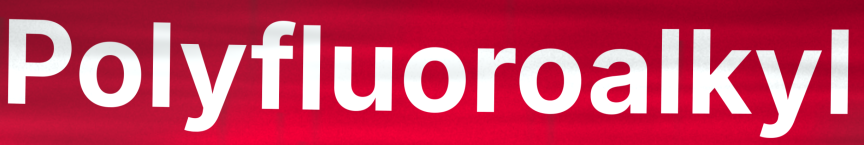
Polyfluoroalkyl